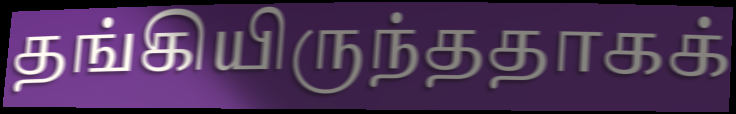
தங்கியிருந்ததாகக்